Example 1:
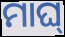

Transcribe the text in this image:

ମାଘ୍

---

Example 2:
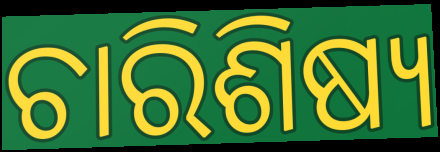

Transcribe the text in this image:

ଚାରିଶିଷ୍ୟ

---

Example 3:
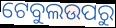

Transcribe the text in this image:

ଟେବୁଲଉପରୁ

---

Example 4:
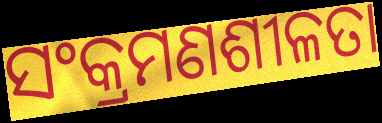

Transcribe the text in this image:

ସଂକ୍ରମଣଶୀଳତା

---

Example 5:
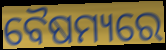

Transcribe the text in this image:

ବୈଷମ୍ୟରେ